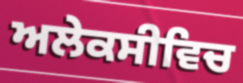
ਅਲੇਕਸੀਵਿਚ